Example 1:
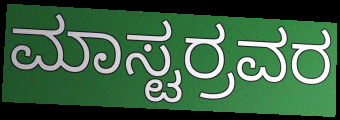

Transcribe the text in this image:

ಮಾಸ್ಟರ್ರವರ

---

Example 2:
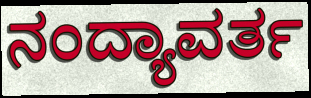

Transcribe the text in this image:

ನಂದ್ಯಾವರ್ತ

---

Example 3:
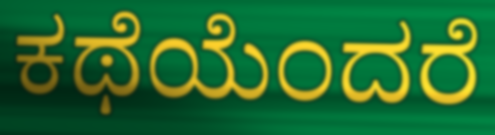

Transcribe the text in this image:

ಕಥೆಯೆಂದರೆ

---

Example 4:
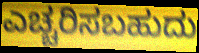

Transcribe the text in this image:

ಎಚ್ಚರಿಸಬಹುದು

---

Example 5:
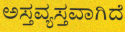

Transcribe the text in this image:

ಅಸ್ತವ್ಯಸ್ತವಾಗಿದೆ